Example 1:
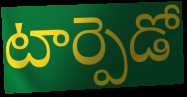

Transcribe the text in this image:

టార్పెడో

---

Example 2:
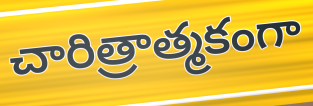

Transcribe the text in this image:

చారిత్రాత్మకంగా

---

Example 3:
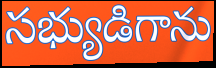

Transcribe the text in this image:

సభ్యుడిగాను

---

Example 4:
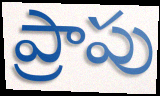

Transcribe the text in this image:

ప్రాపు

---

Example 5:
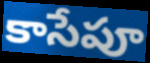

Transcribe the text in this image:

కాసేపూ